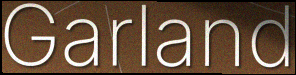
Garland